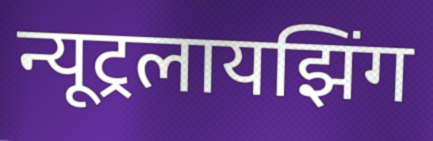
न्यूट्रलायझिंग